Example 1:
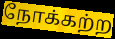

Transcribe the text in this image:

நோக்கற்ற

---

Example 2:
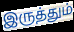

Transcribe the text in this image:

இருத்தும்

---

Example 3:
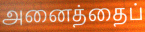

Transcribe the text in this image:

அனைத்தைப்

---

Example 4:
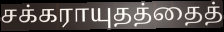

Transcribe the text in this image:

சக்கராயுதத்தைத்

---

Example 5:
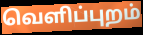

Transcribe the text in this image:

வெளிப்புறம்